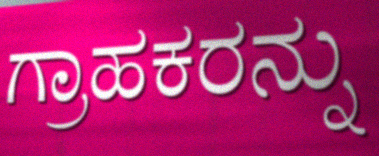
ಗ್ರಾಹಕರನ್ನು